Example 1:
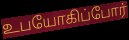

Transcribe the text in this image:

உபயோகிப்போர்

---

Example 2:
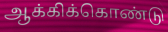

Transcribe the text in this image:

ஆக்கிக்கொண்டு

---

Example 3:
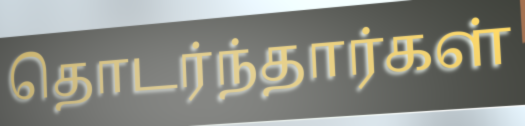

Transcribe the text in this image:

தொடர்ந்தார்கள்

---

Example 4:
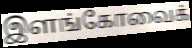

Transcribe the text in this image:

இளங்கோவைக்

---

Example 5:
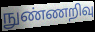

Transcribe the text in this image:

நுண்ணறிவு